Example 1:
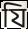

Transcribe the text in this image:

যি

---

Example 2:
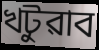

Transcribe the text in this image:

খটুৱাব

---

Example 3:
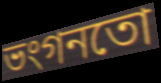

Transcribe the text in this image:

ভংগনতো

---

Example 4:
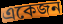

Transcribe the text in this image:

একেজন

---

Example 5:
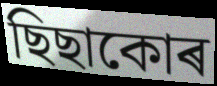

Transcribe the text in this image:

ছিছাকোৰ